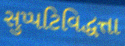
સુપ્પટિવિદ્ધત્તા